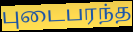
புடைபரந்த